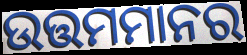
ଉତ୍ତମମାନର